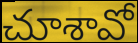
చూశావో